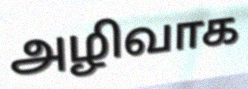
அழிவாக